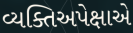
વ્યક્તિઅપેક્ષાએ